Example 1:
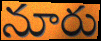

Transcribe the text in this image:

నూరు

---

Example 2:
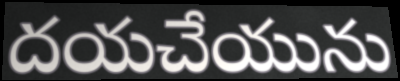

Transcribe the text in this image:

దయచేయును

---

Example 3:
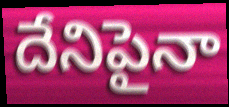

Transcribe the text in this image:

దేనిపైనా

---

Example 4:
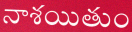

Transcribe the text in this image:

నాశయితుం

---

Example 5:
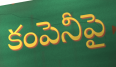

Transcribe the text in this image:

కంపెనీపై